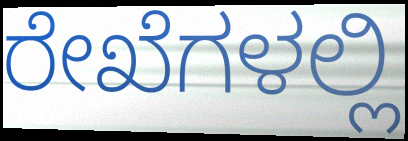
ರೇಖೆಗಳಲ್ಲಿ